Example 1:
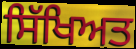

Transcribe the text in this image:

ਸਿੱਖਿਅਤ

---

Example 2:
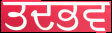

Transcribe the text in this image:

ਤਦਭਵ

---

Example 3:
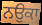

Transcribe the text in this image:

ਨਉਕਾ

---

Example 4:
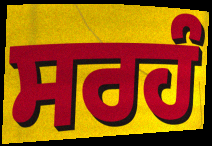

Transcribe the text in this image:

ਸਰਹੰ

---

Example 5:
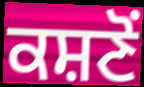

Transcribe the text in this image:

ਕਸ਼ਣੋਂ